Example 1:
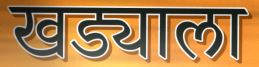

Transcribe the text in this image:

खड्याला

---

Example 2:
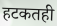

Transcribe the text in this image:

हटकतही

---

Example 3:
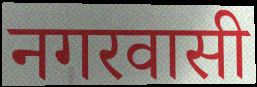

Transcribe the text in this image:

नगरवासी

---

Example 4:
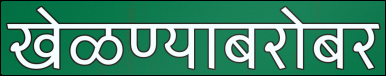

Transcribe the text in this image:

खेळण्याबरोबर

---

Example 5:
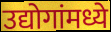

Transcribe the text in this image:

उद्योगांमध्ये